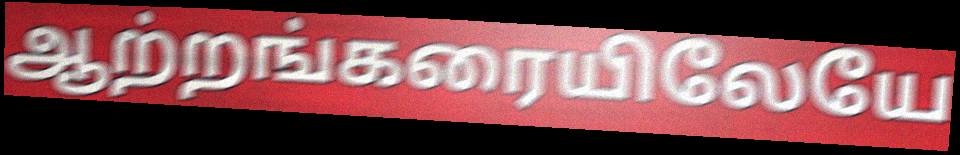
ஆற்றங்கரையிலேயே